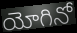
యోగినో